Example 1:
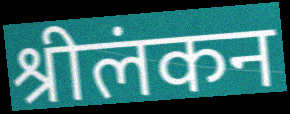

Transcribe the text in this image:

श्रीलंकन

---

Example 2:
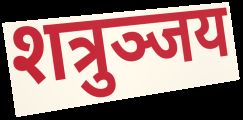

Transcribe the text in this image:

शत्रुञ्जय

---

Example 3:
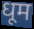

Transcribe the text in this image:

धूम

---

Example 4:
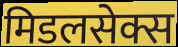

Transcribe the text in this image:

मिडलसेक्स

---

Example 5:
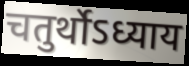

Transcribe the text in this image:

चतुर्थोऽध्याय